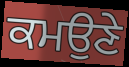
ਕਮਉਣੇ